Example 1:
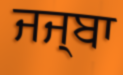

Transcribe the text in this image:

ਜਜ੍ਬਾ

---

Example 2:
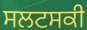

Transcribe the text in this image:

ਸਲਟਸਕੀ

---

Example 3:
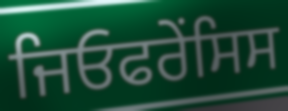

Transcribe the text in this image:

ਜਿਓਫਰੇਂਸਿਸ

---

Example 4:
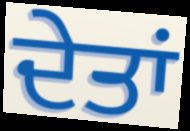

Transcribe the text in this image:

ਦੇਤਾਂ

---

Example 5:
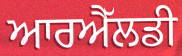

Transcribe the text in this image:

ਆਰਐੱਲਡੀ